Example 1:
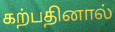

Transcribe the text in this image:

கற்பதினால்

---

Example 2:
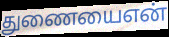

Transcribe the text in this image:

துணையைஎன்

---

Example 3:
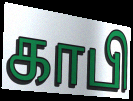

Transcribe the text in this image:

காபி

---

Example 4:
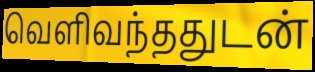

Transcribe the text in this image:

வெளிவந்ததுடன்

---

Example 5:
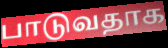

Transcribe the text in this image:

பாடுவதாக